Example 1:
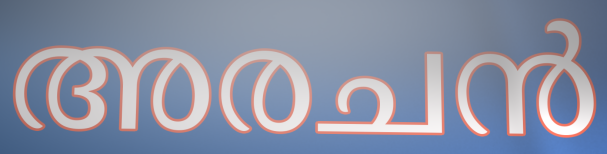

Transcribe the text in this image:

അരചൻ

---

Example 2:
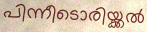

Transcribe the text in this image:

പിന്നീടൊരിയ്ക്കൽ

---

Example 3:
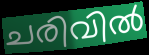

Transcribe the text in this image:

ചരിവിൽ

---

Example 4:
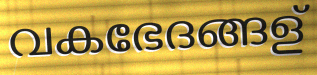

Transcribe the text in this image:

വകഭേദങ്ങള്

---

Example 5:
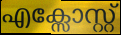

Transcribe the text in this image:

എക്സോസ്റ്റ്